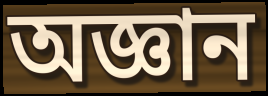
অজ্ঞান